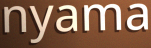
nyama